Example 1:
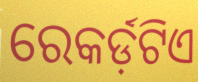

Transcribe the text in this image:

ରେକର୍ଡ଼ଟିଏ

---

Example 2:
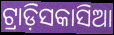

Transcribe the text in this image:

ଟ୍ରାଡ଼ିସକାସିଆ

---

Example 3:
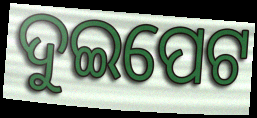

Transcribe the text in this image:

ଦୁଇପେଟ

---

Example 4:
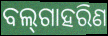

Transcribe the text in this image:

ବଲ୍‌ଗାହରିଣ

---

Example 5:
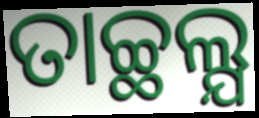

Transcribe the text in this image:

ତାଚ୍ଛଲ୍ଯ